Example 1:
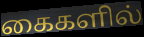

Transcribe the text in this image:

கைகளில்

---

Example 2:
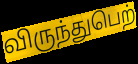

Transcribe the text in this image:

விருந்துபெற்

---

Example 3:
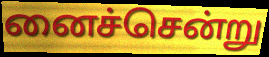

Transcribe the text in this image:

னைச்சென்று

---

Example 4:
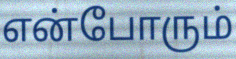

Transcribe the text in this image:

என்போரும்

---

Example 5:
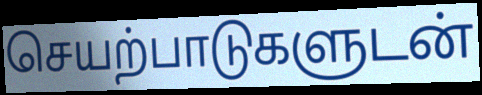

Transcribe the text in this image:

செயற்பாடுகளுடன்